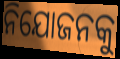
ନିଯୋଜନକୁ